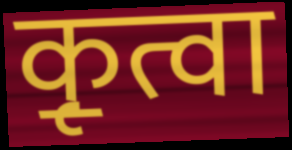
कृ॒त्वा